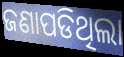
ଜଣାପଡିଥିଲା